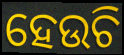
ହେଉଚି